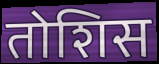
तोशिस